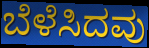
ಬೆಳೆಸಿದವು